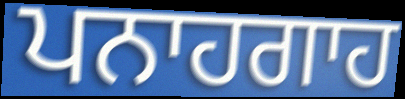
ਪਨਾਹਗਾਹ